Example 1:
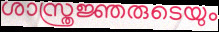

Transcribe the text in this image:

ശാസ്ത്രജ്ഞരുടെയും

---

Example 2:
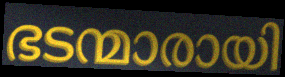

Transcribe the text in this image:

ഭടന്മാരായി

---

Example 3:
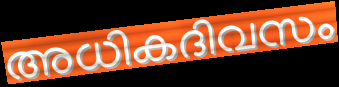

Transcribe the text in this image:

അധികദിവസം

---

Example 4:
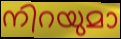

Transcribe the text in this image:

നിറയുമാ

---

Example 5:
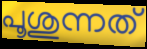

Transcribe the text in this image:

പൂശുന്നത്